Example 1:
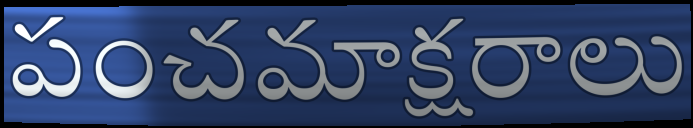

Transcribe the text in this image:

పంచమాక్షరాలు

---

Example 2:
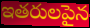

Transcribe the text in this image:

ఇతరులపైన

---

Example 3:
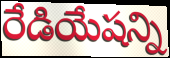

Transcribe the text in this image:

రేడియేషన్ని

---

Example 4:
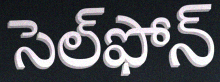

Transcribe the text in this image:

సెల్‌ఫోన్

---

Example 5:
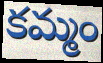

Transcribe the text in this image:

కమ్మం